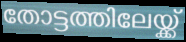
തോട്ടത്തിലേയ്ക്ക്